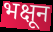
भक्षून